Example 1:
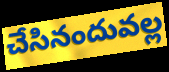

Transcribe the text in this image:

చేసినందువల్ల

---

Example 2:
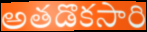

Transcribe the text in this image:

అతడొకసారి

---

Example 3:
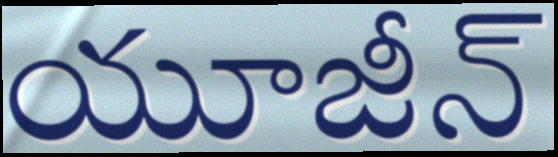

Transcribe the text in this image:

యూజీన్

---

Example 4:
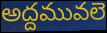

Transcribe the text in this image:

అద్దమువలె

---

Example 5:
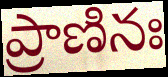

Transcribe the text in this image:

ప్రాణినః